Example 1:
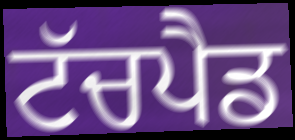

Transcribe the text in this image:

ਟੱਚਪੈਡ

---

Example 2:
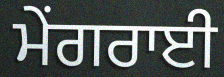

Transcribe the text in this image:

ਮੇਂਗਰਾਈ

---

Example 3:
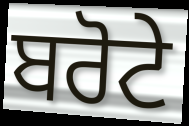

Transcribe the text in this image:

ਬਰੋਟੇ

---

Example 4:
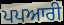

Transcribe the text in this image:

ਪਪਆਰੀ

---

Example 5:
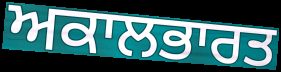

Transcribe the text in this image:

ਅਕਾਲਭਾਰਤ